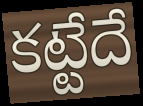
కట్టేదే